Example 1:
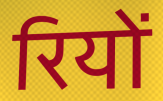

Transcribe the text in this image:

रियों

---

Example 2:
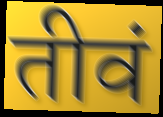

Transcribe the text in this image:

तीवं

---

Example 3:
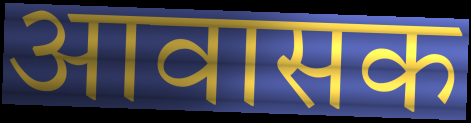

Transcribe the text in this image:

आवासक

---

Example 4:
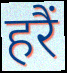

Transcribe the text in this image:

हरैं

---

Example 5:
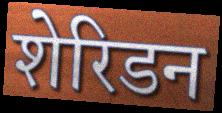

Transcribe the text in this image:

शेरिडन